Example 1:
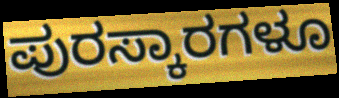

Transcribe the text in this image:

ಪುರಸ್ಕಾರಗಳೂ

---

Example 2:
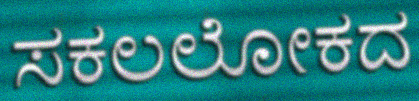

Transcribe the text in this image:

ಸಕಲಲೋಕದ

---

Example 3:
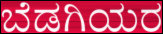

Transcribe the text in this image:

ಬೆಡಗಿಯರ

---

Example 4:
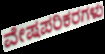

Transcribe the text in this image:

ವೇಷಪರಿಕರಗಳು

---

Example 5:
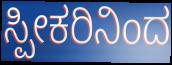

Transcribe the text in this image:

ಸ್ಪೀಕರಿನಿಂದ